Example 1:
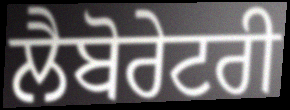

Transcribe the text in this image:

ਲੈਬੋਰੇਟਰੀ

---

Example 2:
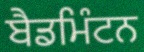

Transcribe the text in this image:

ਬੈਡਮਿੰਟਨ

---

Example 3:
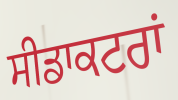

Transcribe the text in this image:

ਸੀਡਾਕਟਰਾਂ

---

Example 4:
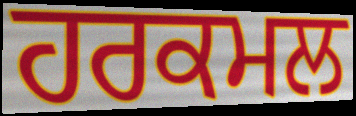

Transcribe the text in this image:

ਹਰਕਮਲ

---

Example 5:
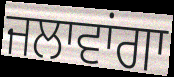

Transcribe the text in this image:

ਜਲਾਵਾਂਗਾ